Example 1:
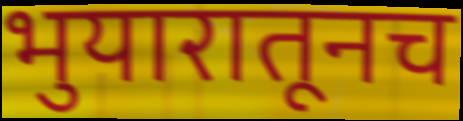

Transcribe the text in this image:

भुयारातूनच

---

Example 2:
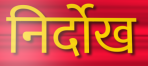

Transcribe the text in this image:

निर्दोख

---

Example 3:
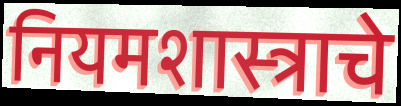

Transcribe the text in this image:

नियमशास्त्राचे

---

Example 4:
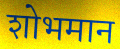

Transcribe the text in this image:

शोभमान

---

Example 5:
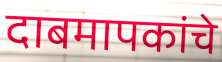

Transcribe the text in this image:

दाबमापकांचे